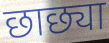
छाछ्या